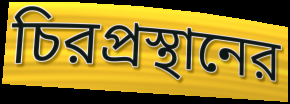
চিরপ্রস্থানের